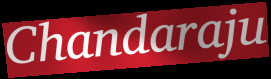
Chandaraju